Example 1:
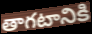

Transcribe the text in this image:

తాగటానికి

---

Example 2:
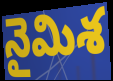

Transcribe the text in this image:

నైమిశ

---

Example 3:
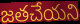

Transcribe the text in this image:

జతచేయని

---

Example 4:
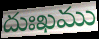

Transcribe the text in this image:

దుఃఖము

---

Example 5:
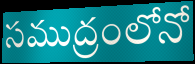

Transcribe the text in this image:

సముద్రంలోనో